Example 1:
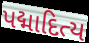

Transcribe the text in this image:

પદ્માદિત્ય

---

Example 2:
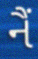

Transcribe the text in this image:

નૈં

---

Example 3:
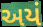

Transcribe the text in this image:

અયં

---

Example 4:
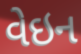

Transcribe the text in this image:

વેઇન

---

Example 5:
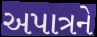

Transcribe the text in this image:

અપાત્રને